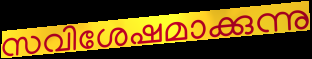
സവിശേഷമാക്കുന്നു